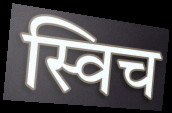
स्विच